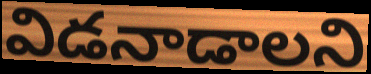
విడనాడాలని